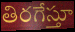
తిరగేస్తూ